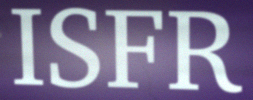
ISFR